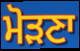
ਮੋੜਣਾ